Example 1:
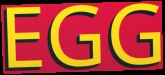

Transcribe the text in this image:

EGG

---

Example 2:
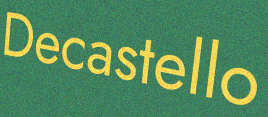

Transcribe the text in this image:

Decastello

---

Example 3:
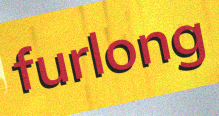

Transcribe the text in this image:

furlong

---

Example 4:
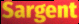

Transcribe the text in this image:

Sargent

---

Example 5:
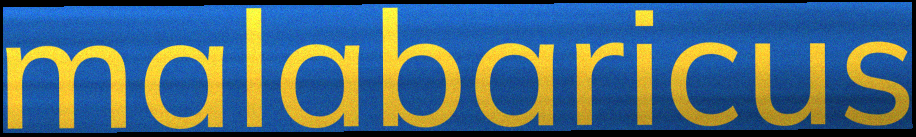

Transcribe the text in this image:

malabaricus